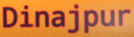
Dinajpur